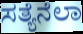
ಸತ್ಯೆನೆಲಾ